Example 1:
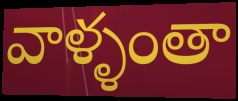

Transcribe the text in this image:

వాళ్ళంతా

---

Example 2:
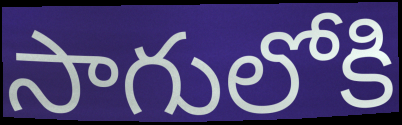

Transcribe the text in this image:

సాగులోకి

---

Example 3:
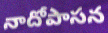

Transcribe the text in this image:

నాదోపాసన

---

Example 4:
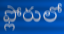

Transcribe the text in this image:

ఫ్లోరులో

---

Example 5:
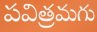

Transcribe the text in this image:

పవిత్రమగు